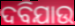
ଦବିଯାଉ